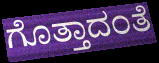
ಗೊತ್ತಾದಂತೆ